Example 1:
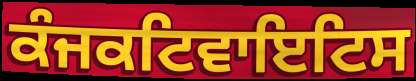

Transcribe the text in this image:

ਕੰਜਕਟਿਵਾਇਟਿਸ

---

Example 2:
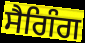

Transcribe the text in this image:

ਸੈਗਿੰਗ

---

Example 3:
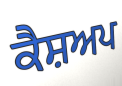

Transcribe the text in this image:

ਕੈਸ਼ਅਪ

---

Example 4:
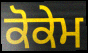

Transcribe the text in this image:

ਕੋਕੇਮ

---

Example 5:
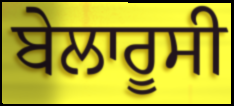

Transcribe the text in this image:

ਬੇਲਾਰੂਸੀ